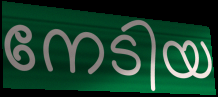
നേടിയ